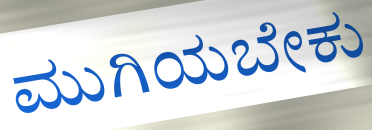
ಮುಗಿಯಬೇಕು